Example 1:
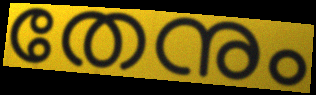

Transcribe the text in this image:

തേനും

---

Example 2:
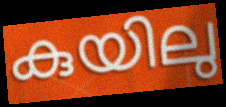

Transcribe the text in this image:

കുയിലു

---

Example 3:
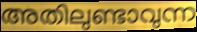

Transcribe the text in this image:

അതിലുണ്ടാവുന്ന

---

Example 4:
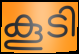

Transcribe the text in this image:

കൂടി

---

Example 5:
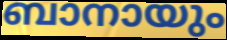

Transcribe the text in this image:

ബാനായും